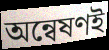
অন্বেষণই